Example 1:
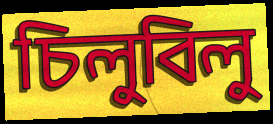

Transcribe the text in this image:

চিলুবিলু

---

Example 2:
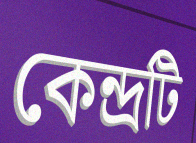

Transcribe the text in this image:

কেন্দ্রটি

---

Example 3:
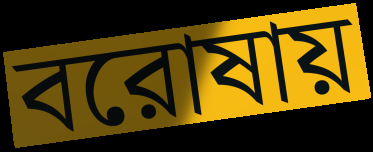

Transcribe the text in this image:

বরোষায়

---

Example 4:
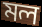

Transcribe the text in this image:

মল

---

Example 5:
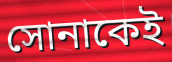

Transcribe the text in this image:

সোনাকেই